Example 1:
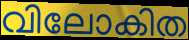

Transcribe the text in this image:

വിലോകിത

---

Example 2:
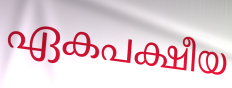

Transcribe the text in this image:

ഏകപക്ഷീയ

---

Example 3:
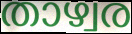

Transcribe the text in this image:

താഴ്വര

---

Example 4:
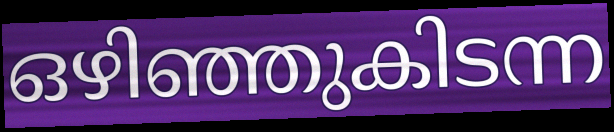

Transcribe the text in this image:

ഒഴിഞ്ഞുകിടന്ന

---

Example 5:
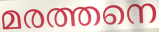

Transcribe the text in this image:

മരത്തനെ